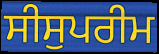
ਸੀਸੁਪਰੀਮ